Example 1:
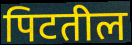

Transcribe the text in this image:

पिटतील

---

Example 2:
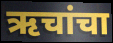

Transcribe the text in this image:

ऋचांचा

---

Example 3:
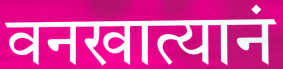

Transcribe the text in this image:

वनखात्यानं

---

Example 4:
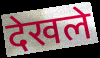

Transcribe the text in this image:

देखले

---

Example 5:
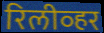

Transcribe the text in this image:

रिलीव्हर